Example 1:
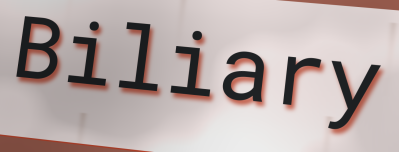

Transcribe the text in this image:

Biliary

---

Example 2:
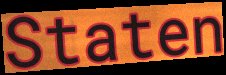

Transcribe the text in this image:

Staten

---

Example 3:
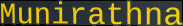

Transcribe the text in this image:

Munirathna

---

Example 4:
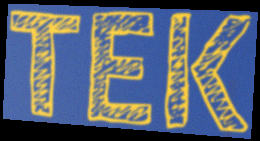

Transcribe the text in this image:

TEK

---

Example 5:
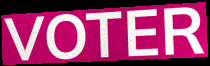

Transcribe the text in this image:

VOTER